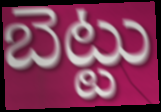
బెట్టు